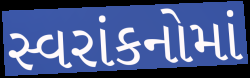
સ્વરાંકનોમાં